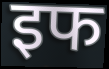
इफ